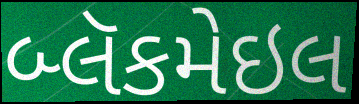
બ્લૅકમેઇલ